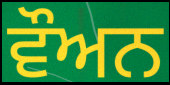
ਵੌਅਨ